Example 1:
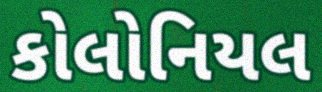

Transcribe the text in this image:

કોલોનિયલ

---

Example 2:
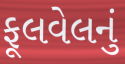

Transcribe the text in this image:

ફૂલવેલનું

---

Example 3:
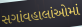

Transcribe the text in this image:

સગાંવહાલાંઓમાં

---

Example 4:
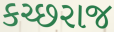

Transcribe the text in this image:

કચ્છરાજ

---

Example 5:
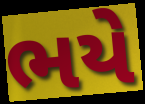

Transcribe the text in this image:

ભયે